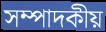
সম্পাদকীয়